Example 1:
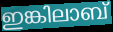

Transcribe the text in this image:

ഇങ്കിലാബ്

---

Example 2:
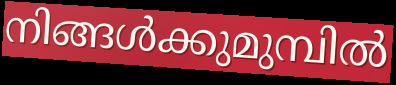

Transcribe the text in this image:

നിങ്ങൾക്കുമുമ്പിൽ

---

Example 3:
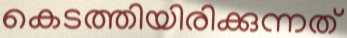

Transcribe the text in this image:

കെടത്തിയിരിക്കുന്നത്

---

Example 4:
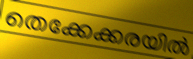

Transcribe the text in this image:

തെക്കേക്കരയിൽ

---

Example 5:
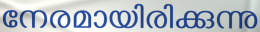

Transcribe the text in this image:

നേരമായിരിക്കുന്നു